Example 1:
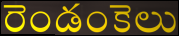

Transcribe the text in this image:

రెండంకెలు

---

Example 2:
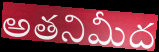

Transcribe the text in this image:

అతనిమీద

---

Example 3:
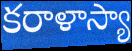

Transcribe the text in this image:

కరాళాస్యా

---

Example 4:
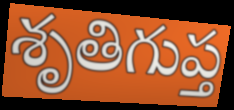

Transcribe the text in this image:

శృతిగుప్త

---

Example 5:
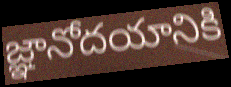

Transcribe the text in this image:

జ్ఞానోదయానికి